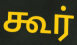
கூர்